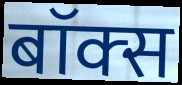
बॉक्‍स